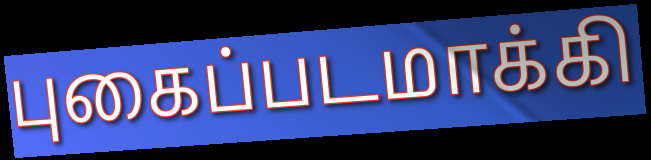
புகைப்படமாக்கி